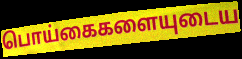
பொய்கைகளையுடைய